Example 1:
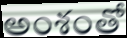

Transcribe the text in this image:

అంశంతో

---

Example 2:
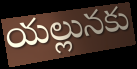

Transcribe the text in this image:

యల్లునకు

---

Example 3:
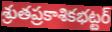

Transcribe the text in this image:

శ్రుతప్రకాశికభట్టర్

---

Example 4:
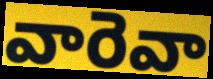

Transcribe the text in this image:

వారెవా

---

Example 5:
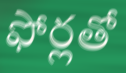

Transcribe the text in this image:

ఫోర్లతో